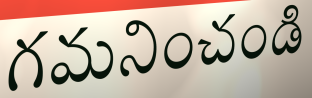
గమనించండి